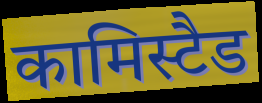
कामिस्टैड